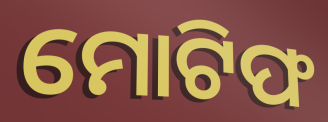
ମୋଟିଫ